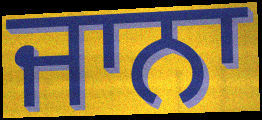
ਜਾਨਾ